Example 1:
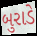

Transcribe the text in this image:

બુરાડે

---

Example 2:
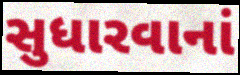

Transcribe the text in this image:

સુધારવાનાં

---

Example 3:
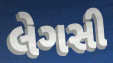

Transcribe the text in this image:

લેગસી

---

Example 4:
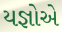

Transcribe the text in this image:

યજ્ઞોએ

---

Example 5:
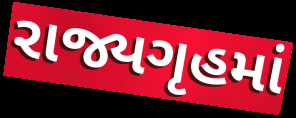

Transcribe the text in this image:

રાજ્યગૃહમાં